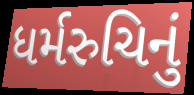
ધર્મરુચિનું